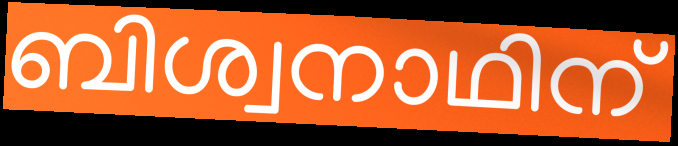
ബിശ്വനാഥിന്